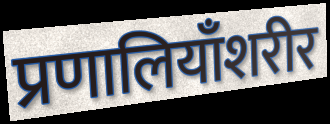
प्रणालियाँशरीर